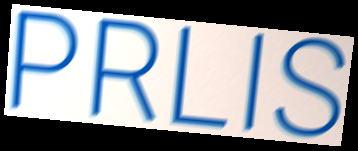
PRLIS